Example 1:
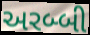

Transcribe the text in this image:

અરબ્બી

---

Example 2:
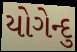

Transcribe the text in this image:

યોગેન્દુ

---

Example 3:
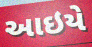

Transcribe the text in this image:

આઇયે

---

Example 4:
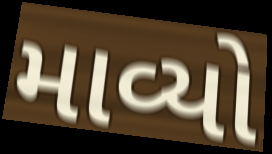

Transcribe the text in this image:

માવ્યો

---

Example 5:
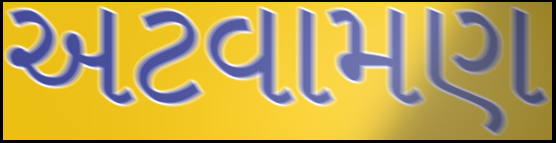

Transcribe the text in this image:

અટવામણ